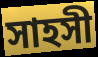
সাহসী